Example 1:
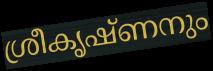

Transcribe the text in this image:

ശ്രീകൃഷ്ണനും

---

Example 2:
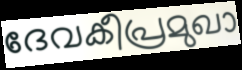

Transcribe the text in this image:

ദേവകീപ്രമുഖാ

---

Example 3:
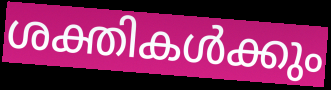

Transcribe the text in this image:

ശക്തികൾക്കും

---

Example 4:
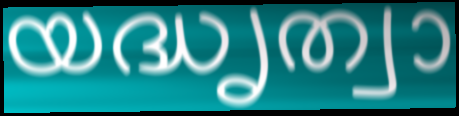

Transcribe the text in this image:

യദ്ധൃത്വാ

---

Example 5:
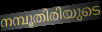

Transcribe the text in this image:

നമ്പൂതിരിയുടെ